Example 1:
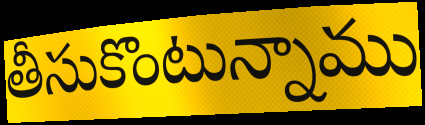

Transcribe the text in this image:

తీసుకొంటున్నాము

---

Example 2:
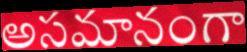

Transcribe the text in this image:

అసమానంగా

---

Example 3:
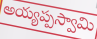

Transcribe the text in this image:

అయ్యప్పస్వామి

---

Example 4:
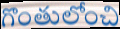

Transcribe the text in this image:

గొంతులోంచి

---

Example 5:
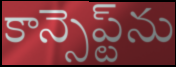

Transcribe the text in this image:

కాన్సెప్ట్‌ను